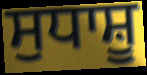
ਸੁਧਾਸ਼ੂ